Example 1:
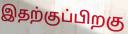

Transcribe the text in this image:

இதற்குப்பிறகு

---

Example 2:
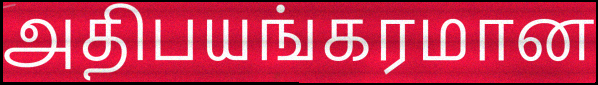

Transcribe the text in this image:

அதிபயங்கரமான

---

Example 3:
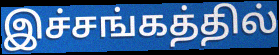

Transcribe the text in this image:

இச்சங்கத்தில்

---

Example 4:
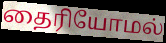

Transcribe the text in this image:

தைரியோமல்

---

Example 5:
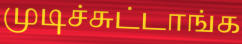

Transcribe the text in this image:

முடிச்சுட்டாங்க